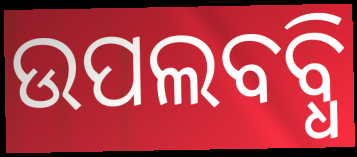
ଉପଲବବ୍ଧି